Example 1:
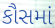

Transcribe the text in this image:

કૌસમાં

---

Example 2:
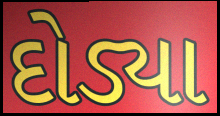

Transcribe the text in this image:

દોડ્યા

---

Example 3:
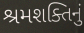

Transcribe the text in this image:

શ્રમશક્તિનું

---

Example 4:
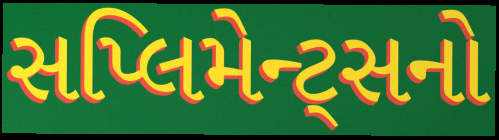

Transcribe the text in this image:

સપ્લિમેન્ટ્સનો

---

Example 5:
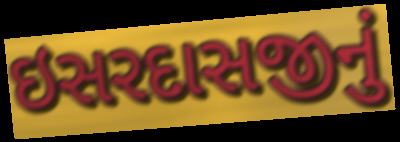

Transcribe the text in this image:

ઇસરદાસજીનું